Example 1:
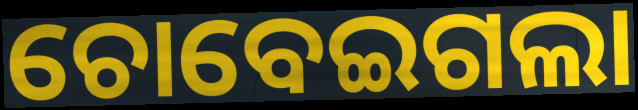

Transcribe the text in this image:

ଚୋବେଇଗଲା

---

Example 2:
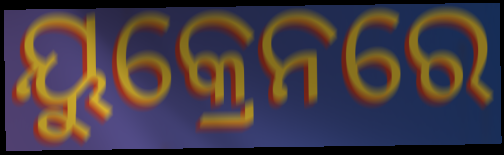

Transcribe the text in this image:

ୟୁକ୍ରେନରେ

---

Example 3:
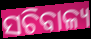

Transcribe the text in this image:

ସଚିବାଳ୍ୟ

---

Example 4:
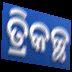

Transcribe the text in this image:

ତ୍ରିକଚ୍ଛ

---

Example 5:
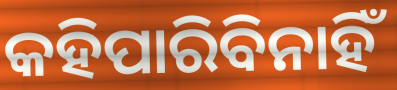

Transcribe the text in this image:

କହିପାରିବିନାହିଁ